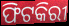
ଫିଟକିରୀ